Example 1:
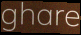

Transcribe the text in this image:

ghare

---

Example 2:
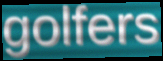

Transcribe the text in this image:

golfers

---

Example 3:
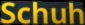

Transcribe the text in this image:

Schuh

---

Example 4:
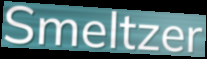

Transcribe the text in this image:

Smeltzer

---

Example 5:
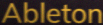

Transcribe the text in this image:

Ableton